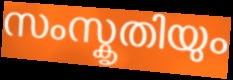
സംസ്കൃതിയും